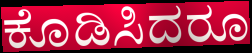
ಕೊಡಿಸಿದರೂ